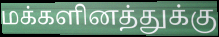
மக்களினத்துக்கு